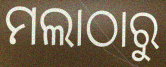
ମଲାଠାରୁ